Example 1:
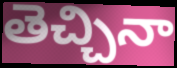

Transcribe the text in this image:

తెచ్చినా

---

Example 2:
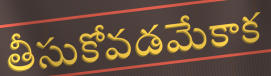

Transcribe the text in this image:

తీసుకోవడమేకాక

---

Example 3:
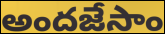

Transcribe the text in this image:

అందజేసాం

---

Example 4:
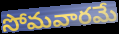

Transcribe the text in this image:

సోమవారమే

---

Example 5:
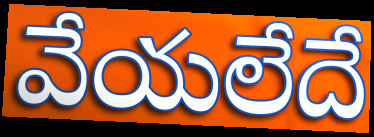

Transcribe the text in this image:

వేయలేదే